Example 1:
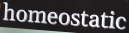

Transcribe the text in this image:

homeostatic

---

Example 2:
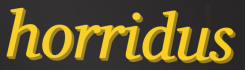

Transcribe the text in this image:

horridus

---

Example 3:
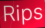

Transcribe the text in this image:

Rips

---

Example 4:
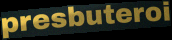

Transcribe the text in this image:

presbuteroi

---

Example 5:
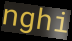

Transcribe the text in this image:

nghi